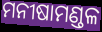
ମନୀଷାମଣ୍ଡଳ